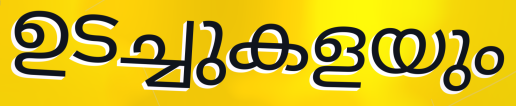
ഉടച്ചുകളയും